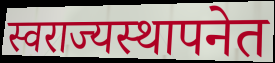
स्वराज्यस्थापनेत